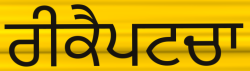
ਰੀਕੈਪਟਚਾ